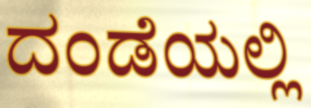
ದಂಡೆಯಲ್ಲಿ